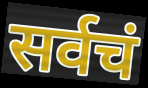
सर्वचं